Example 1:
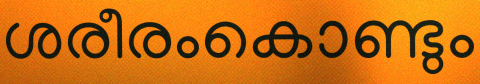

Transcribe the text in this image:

ശരീരംകൊണ്ടും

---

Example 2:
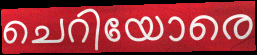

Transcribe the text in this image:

ചെറിയോരെ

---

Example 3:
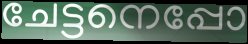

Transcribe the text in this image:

ചേട്ടനെപ്പോ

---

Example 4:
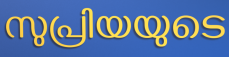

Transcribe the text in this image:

സുപ്രിയയുടെ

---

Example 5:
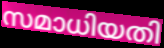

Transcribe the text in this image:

സമാധിയതി